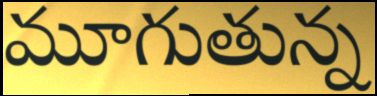
మూగుతున్న